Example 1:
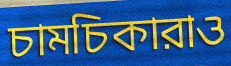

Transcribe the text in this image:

চামচিকারাও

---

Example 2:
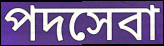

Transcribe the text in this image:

পদসেবা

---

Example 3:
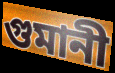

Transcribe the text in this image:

গুমানী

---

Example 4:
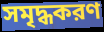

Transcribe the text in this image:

সমৃদ্ধকরণ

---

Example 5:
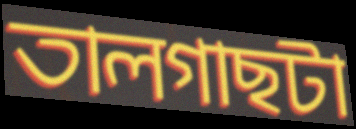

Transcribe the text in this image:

তালগাছটা